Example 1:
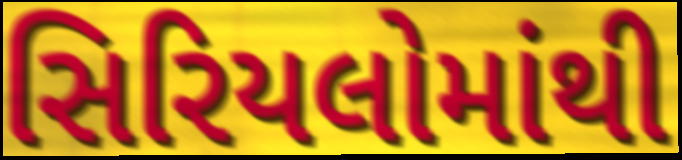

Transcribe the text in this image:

સિરિયલોમાંથી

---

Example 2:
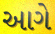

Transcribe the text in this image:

આગે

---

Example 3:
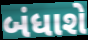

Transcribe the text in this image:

બંધાશે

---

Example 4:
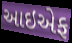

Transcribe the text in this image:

આઇએફ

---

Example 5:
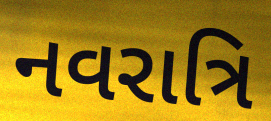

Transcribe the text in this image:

નવરાત્રિ